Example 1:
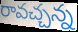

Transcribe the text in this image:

రావచ్చన్న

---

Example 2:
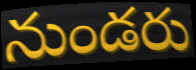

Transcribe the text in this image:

నుండరు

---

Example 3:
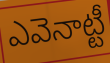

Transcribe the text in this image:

ఎవెనాట్టీ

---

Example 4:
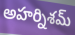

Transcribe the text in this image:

అహర్నిశమ్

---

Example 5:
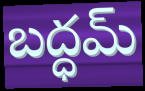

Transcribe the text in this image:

బద్ధమ్